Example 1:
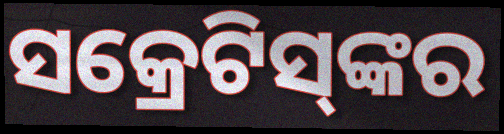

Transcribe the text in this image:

ସକ୍ରେଟିସ୍‌ଙ୍କର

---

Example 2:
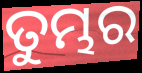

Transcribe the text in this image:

ତୁମ୍ଭର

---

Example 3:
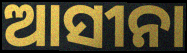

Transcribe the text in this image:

ଆସୀନା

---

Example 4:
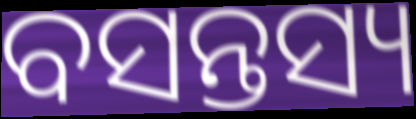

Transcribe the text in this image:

ବସନ୍ତସ୍ୟ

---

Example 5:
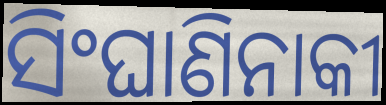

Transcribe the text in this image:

ସିଂଘାଣିନାକୀ